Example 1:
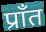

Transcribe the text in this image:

प्राँत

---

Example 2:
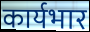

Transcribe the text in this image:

कार्यभार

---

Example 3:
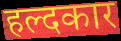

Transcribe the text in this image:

हल्दकार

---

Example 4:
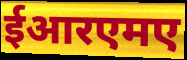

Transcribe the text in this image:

ईआरएमए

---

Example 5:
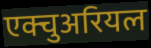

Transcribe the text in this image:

एक्चुअरियल